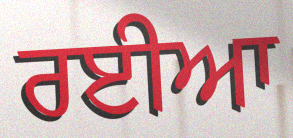
ਰਈਆ